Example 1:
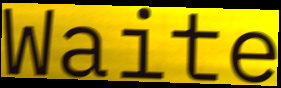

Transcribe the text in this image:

Waite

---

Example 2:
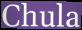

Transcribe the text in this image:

Chula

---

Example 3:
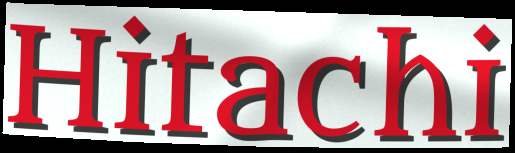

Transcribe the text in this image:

Hitachi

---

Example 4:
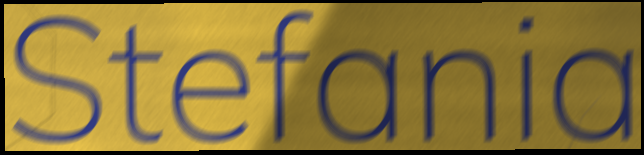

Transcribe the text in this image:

Stefania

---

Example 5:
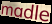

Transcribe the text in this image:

madle